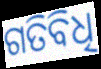
ଗତିବିଧି